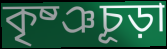
কৃষ্ঞচূড়া